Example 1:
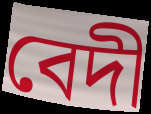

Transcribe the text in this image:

বেদী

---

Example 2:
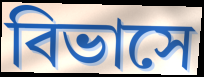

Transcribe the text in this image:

বিভাসে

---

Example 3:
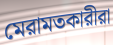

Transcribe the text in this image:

মেরামতকারীরা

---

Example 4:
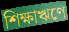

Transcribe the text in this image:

শিক্ষাঋণে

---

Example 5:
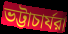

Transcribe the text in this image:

ভট্টাচার্যরা